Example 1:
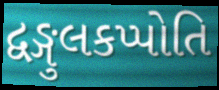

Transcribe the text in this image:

દ્વઙ્ગુલકપ્પોતિ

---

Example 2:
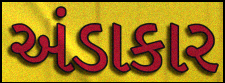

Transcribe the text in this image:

અંડાકાર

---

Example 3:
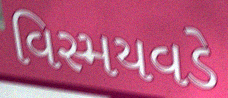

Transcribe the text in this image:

વિસ્મયવડે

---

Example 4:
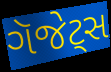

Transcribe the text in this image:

ગૅજેટ્સ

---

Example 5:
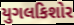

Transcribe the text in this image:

યુગલકિશોર